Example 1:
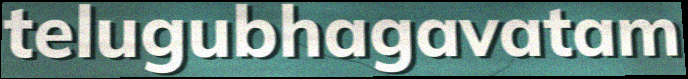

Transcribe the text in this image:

telugubhagavatam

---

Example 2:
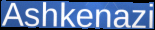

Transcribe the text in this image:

Ashkenazi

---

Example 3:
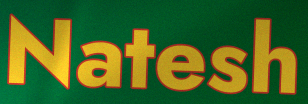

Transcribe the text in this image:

Natesh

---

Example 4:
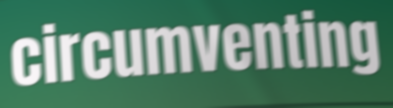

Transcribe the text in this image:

circumventing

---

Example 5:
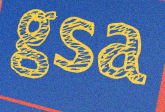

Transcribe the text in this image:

gsa